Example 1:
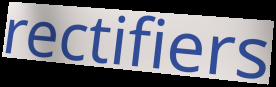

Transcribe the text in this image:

rectifiers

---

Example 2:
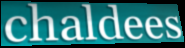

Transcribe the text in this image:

chaldees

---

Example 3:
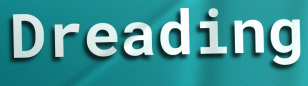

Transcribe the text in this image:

Dreading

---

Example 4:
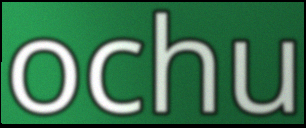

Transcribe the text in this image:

ochu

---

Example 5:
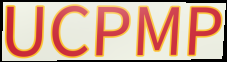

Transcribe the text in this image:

UCPMP